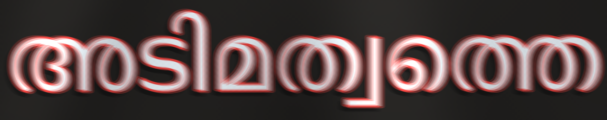
അടിമത്വത്തെ